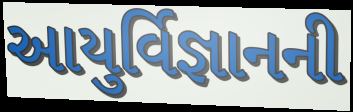
આયુર્વિજ્ઞાનની